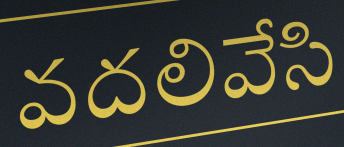
వదలివేసి